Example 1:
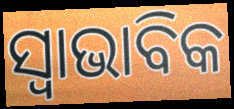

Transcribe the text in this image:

ସ୍ୱାଭାବିକ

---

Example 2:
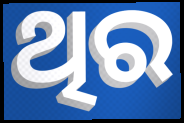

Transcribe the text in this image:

ଥିର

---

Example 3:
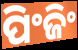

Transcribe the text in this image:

ପିଂଜିଂ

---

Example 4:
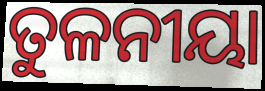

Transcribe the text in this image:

ତୁଳନୀୟା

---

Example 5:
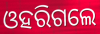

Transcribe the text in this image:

ଓହରିଗଲେ